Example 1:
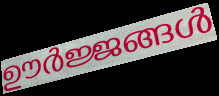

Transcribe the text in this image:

ഊർജ്ജങ്ങൾ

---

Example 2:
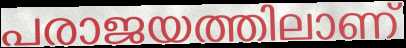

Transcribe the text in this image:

പരാജയത്തിലാണ്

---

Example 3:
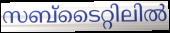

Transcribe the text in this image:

സബ്ടൈറ്റിലിൽ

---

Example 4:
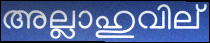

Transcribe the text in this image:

അല്ലാഹുവില്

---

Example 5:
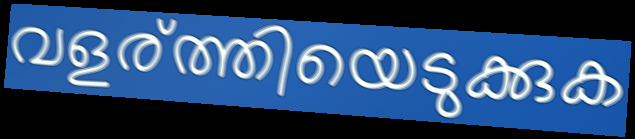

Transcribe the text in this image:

വളര്ത്തിയെടുക്കുക